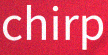
chirp